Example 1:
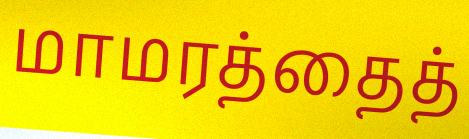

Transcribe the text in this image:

மாமரத்தைத்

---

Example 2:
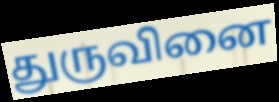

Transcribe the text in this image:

துருவினை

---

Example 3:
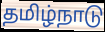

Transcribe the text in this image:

தமிழ்நாடு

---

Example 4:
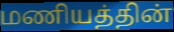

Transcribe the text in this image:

மணியத்தின்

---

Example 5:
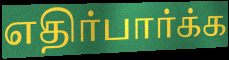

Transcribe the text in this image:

எதிர்பார்க்க